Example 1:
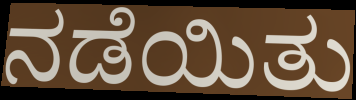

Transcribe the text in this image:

ನಡೆಯಿತು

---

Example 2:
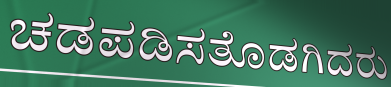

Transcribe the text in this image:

ಚಡಪಡಿಸತೊಡಗಿದರು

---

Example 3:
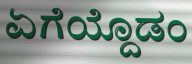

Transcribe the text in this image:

ಏಗೆಯ್ದೊಡಂ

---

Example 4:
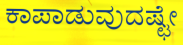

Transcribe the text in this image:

ಕಾಪಾಡುವುದಷ್ಟೇ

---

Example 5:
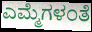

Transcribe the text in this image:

ಎಮ್ಮೆಗಳಂತೆ